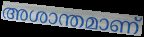
അശാന്തമാണ്